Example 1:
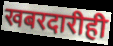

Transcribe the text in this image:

खबरदारीही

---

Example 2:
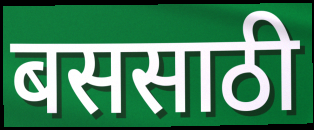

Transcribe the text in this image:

बससाठी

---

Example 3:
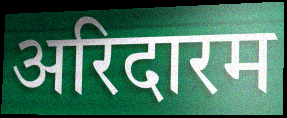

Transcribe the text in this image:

अरिदारम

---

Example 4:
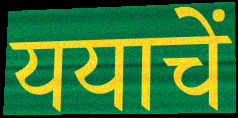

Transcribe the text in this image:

ययाचें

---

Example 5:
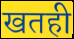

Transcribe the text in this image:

खतही